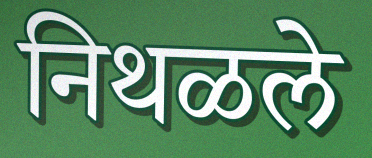
निथळले